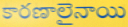
కారణాలైనాయి